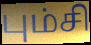
பும்சி